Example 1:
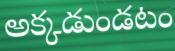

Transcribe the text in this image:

అక్కడుండటం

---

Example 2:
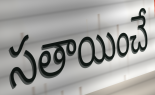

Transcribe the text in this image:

సతాయించే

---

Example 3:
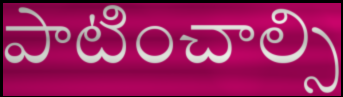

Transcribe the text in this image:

పాటించాల్సి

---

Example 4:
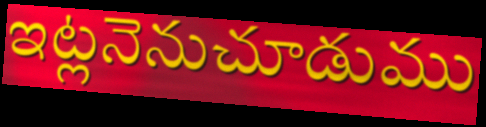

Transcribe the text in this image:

ఇట్లనెనుచూడుము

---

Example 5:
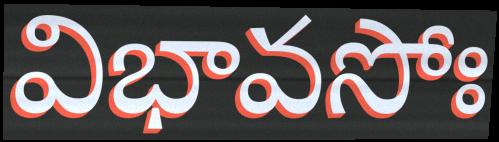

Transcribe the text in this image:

విభావసోః